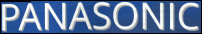
PANASONIC